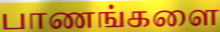
பாணங்களை